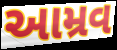
આમ્રવ